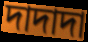
দাদাদা